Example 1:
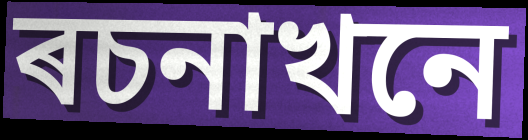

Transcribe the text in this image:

ৰচনাখনে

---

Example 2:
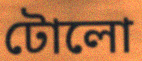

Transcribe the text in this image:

টোলো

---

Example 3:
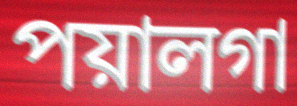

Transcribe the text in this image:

পয়ালগা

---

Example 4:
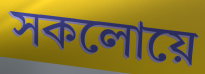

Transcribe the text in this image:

সকলোয়ে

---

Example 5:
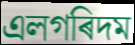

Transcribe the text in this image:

এলগৰিদম